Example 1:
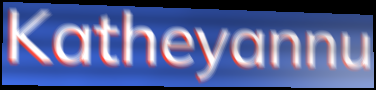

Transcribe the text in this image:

Katheyannu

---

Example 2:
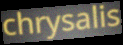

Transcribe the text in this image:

chrysalis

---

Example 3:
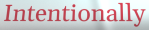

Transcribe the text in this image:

Intentionally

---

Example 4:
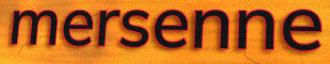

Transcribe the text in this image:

mersenne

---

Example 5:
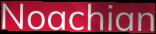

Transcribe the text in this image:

Noachian